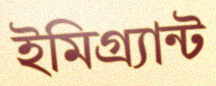
ইমিগ্র্যান্ট